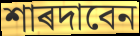
শাৰদাবেন